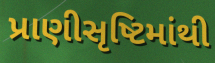
પ્રાણીસૃષ્ટિમાંથી